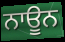
ਨਾਊਨ